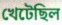
খেটেছিল